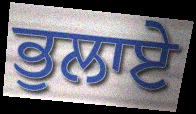
ਭੁਲਾਏ